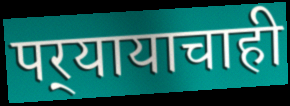
पर्यायाचाही